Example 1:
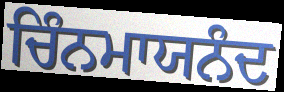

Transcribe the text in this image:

ਚਿੰਨਮਾਯਨੰਦ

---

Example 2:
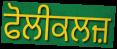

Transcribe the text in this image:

ਫੋਲੀਕਲਜ਼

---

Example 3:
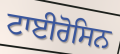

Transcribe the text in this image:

ਟਾਈਰੋਸਿਨ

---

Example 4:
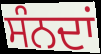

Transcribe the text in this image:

ਸੰਨਦਾਂ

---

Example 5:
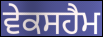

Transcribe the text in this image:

ਵੇਕਸਹੈਮ